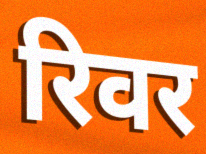
रिवर